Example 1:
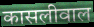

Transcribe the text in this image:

कासलीवाल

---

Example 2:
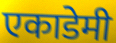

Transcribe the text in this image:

एकाडेमी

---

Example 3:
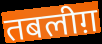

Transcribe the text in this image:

तबलीग़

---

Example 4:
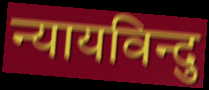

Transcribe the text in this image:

न्यायविन्दु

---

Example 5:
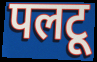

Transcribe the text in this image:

पलटू